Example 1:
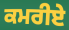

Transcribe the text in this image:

ਕਮਰੀਏ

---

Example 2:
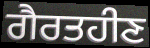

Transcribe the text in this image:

ਗੈਰਤਹੀਣ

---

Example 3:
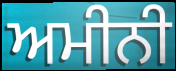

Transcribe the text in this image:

ਅਮੀਨੀ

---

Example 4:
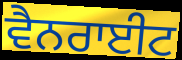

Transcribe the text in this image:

ਵੈਨਰਾਈਟ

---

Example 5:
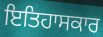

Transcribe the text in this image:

ਇਤਿਹਾਸਕਾਰ